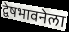
द्वेषभावनेला